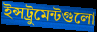
ইন্সট্রুমেন্টগুলো